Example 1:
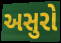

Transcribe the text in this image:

અસુરો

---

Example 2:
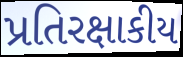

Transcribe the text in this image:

પ્રતિરક્ષાકીય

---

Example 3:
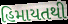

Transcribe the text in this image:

હિમાયતથી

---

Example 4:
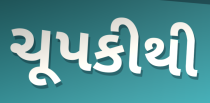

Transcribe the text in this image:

ચૂપકીથી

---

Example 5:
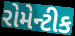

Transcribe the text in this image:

રોમેન્ટીક